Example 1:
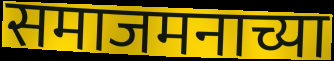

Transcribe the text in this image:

समाजमनाच्या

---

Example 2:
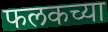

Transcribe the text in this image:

फलकच्या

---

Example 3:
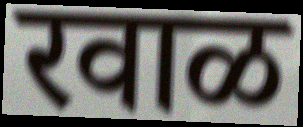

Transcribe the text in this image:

रवाळ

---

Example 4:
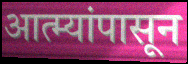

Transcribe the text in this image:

आत्म्यांपासून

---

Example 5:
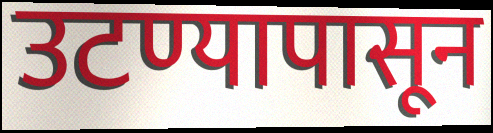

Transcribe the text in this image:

उटण्यापासून